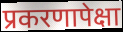
प्रकरणापेक्षा